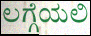
ಲಗ್ಗೆಯಲಿ